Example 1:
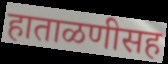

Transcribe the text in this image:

हाताळणीसह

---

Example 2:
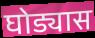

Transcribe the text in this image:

घोड्यास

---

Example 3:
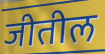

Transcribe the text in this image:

जीतील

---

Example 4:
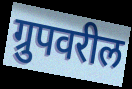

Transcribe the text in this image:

ग्रुपवरील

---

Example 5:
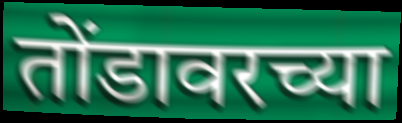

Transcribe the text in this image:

तोंडावरच्या